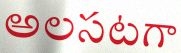
అలసటగా